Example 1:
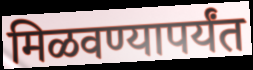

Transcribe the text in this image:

मिळवण्यापर्यंत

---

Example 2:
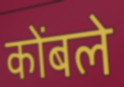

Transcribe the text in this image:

कोंबले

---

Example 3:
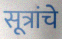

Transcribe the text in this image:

सूत्रांचे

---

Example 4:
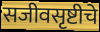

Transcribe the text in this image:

सजीवसृष्टीचे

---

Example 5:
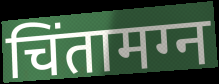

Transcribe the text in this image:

चिंतामग्न